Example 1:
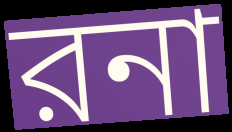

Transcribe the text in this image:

রনা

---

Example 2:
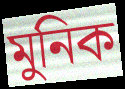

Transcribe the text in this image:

মুনিক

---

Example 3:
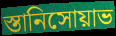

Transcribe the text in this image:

স্তানিসোয়াভ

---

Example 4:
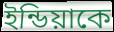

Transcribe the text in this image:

ইন্ডিয়াকে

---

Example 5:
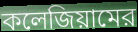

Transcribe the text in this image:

কলেজিয়ামের